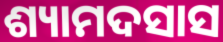
ଶ୍ୟାମଦସାସ